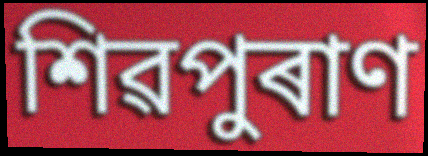
শিৱপুৰাণ